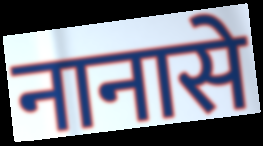
नानासे